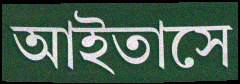
আইতাসে